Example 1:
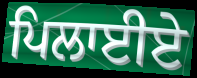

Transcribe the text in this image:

ਪਿਲਾਈਏ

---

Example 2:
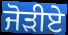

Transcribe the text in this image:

ਜੋੜੀਏ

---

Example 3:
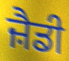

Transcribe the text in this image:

ਜ਼ੈਡੀ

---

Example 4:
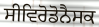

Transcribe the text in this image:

ਸੀਵਿਰੋਡੋਨੈਸਕ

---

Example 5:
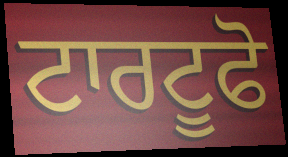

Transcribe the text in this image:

ਟਾਰਟੂਫੋ